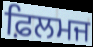
ਫ਼ਿਲਮਜ